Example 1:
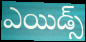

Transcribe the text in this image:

ఎయిడ్స్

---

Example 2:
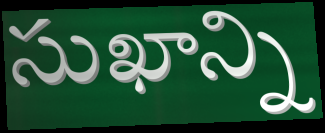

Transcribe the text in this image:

సుఖాన్ని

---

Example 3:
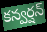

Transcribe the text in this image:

కన్వర్షన్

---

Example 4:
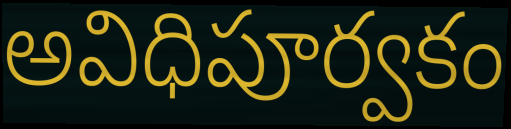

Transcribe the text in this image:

అవిధిపూర్వకం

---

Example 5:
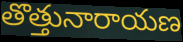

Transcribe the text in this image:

తొత్తునారాయణ